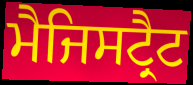
ਮੈਜਿਸਟ੍ਰੈਟ